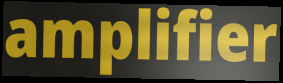
amplifier